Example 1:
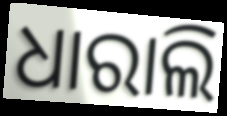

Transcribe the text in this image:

ଧାରାଲି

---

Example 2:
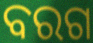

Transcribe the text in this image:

ବରଗ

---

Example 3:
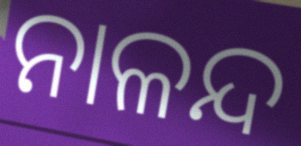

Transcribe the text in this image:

ନାଳନ୍ଦ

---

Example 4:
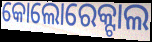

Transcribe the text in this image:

କୋଲୋରେକ୍ଟାଲ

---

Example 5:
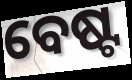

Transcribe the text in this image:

ବେଷ୍ଟ